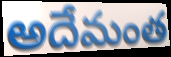
అదేమంత